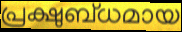
പ്രക്ഷുബ്ധമായ